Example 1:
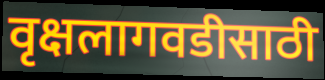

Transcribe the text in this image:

वृक्षलागवडीसाठी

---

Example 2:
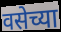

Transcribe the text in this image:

वसेच्या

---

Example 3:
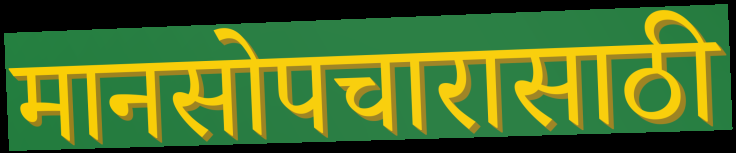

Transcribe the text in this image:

मानसोपचारासाठी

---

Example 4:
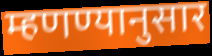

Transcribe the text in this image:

म्हणण्यानुसार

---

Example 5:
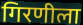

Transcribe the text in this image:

गिरणीला